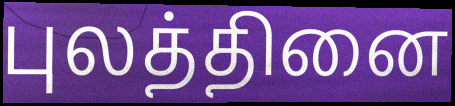
புலத்தினை